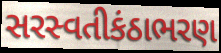
સરસ્વતીકંઠાભરણ